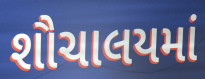
શૌચાલયમાં